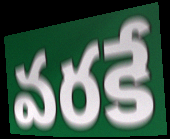
వరకే